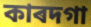
কাৰদগা